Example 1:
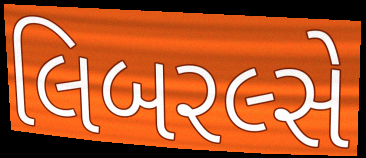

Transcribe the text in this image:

લિબરલ્સે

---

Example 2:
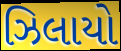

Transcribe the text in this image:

ઝિલાયો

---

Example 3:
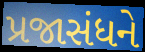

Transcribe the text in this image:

પ્રજાસંધને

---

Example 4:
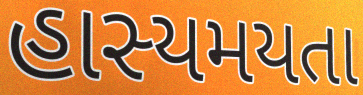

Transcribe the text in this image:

હાસ્યમયતા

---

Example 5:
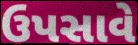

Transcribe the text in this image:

ઉપસાવે